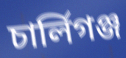
চার্লিগঞ্জ